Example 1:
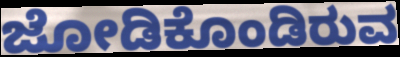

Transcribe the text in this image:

ಜೋಡಿಕೊಂಡಿರುವ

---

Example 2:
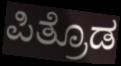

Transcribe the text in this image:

ಪಿತ್ರೊಡ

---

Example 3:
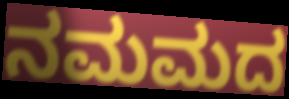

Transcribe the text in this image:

ನಮಮದ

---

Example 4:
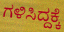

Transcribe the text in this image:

ಗಳಿಸಿದ್ದಕ್ಕೆ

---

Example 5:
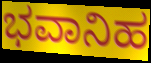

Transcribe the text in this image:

ಭವಾನಿಹ